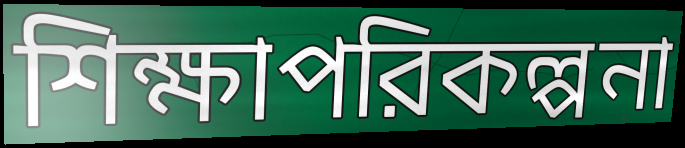
শিক্ষাপরিকল্পনা